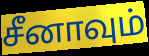
சீனாவும்